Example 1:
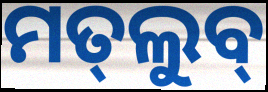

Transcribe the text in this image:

ମତ୍‌ଲୁବ୍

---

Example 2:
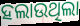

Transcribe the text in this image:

ହଲାଉଥିଲା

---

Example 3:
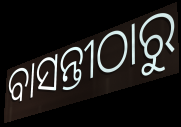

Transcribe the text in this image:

ବାସନ୍ତୀଠାରୁ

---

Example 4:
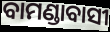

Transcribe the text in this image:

ବାମଣ୍ଡାବାସୀ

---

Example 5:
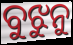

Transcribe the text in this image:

ବୁଝୁନୁ